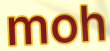
moh